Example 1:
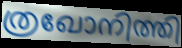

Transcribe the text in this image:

ത്രഖോനിത്തി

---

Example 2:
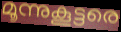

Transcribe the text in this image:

മൂന്നുകൂട്ടരെ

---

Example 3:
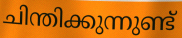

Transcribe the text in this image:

ചിന്തിക്കുന്നുണ്ട്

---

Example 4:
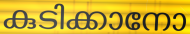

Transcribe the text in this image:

കുടിക്കാനോ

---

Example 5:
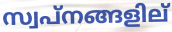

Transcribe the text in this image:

സ്വപ്നങ്ങളില്